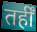
तर्हीं